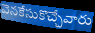
వెనకేసుకొచ్చేవారు